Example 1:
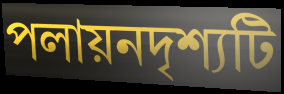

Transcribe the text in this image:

পলায়নদৃশ্যটি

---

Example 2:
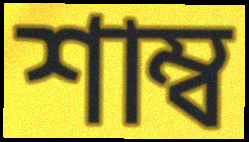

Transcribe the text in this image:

শাম্ব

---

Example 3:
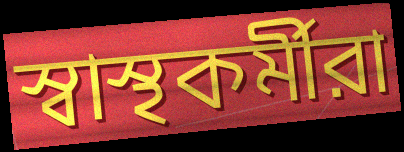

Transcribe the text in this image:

স্বাস্থকর্মীরা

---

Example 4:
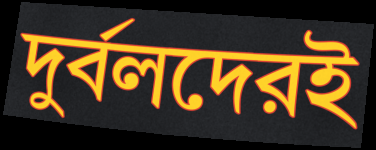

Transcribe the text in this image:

দুর্বলদেরই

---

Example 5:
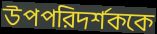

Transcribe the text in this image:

উপপরিদর্শককে